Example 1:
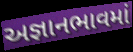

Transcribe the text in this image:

અજ્ઞાનભાવમાં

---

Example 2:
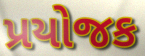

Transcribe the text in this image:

પ્રયોજક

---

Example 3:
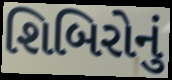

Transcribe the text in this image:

શિબિરોનું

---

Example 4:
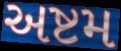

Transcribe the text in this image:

અષ્ટમ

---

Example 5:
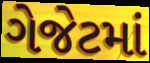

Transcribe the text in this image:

ગેજેટમાં